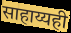
साहाय्यही